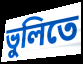
ভুলিতে